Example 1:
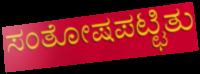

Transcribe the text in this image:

ಸಂತೋಷಪಟ್ಟಿತು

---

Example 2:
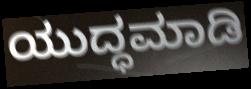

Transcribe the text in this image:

ಯುದ್ಧಮಾಡಿ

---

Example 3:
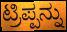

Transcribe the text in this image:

ಟ್ರಿಪ್ಪನ್ನು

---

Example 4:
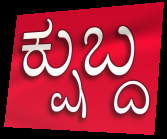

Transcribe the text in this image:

ಕ್ಷುಬ್ದ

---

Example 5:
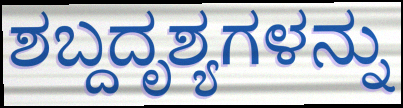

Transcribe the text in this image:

ಶಬ್ದದೃಶ್ಯಗಳನ್ನು